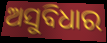
ଅସୁବିଧାର